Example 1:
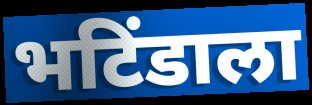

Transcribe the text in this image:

भटिंडाला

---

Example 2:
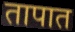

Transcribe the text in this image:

तापात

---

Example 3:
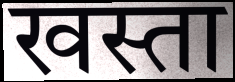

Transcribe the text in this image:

खस्ता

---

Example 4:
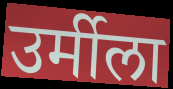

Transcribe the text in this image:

उर्मीला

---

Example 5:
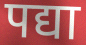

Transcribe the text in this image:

पद्या